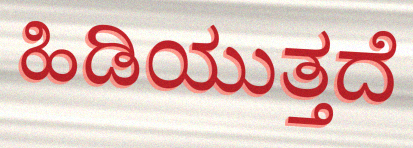
ಹಿಡಿಯುತ್ತದೆ